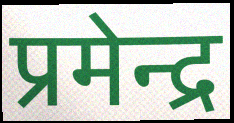
प्रमेन्द्र